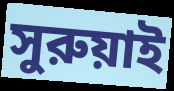
সুরুয়াই